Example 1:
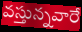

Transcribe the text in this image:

వస్తున్నవారే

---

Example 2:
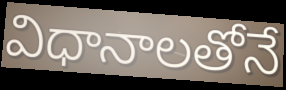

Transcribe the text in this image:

విధానాలతోనే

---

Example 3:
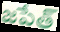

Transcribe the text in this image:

జపేత్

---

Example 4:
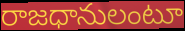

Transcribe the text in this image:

రాజధానులంటూ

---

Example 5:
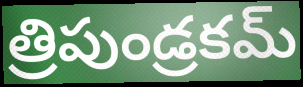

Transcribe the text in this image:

త్రిపుండ్రకమ్